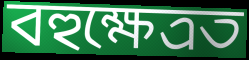
বহুক্ষেত্ৰত